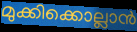
മുക്കിക്കൊല്ലാൻ